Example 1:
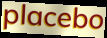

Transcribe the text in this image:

placebo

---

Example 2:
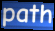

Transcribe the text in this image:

path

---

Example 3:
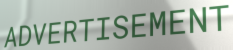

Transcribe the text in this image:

ADVERTISEMENT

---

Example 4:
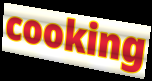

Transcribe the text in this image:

cooking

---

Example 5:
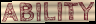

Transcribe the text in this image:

ABILITY